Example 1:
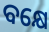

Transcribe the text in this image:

ବକ୍ଷେ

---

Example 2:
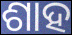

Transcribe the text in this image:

ଶାହ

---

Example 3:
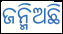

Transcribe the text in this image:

ଜନ୍ମିଅଛି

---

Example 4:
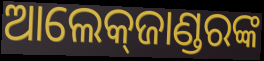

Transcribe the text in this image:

ଆଲେକ୍‍ଜାଣ୍ଡରଙ୍କ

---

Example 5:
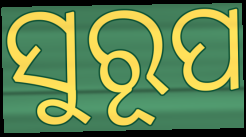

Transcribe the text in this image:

ସୁରୂପ